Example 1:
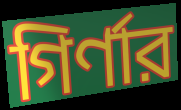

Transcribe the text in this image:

গির্ণার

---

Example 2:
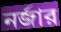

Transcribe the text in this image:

নর্জার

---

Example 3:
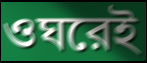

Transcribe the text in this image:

ওঘরেই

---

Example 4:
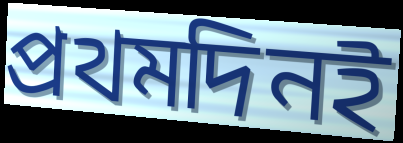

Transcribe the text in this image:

প্রথমদিনই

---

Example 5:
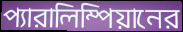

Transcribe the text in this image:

প্যারালিম্পিয়ানের